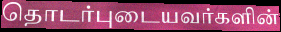
தொடர்புடையவர்களின்